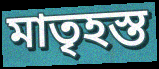
মাতৃহস্ত